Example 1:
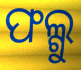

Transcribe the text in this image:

ଫଲ୍ଗୁ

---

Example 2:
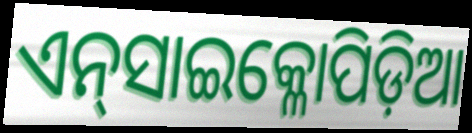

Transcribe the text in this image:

ଏନ୍‌ସାଇକ୍ଳୋପିଡ଼ିଆ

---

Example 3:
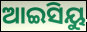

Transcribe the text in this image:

ଆଇସିୟୁ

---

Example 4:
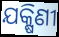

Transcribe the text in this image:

ଯକ୍ଷିଣୀ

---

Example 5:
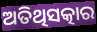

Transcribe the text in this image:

ଅତିଥିସତ୍କାର